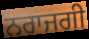
ਨਰਾਜਗੀ